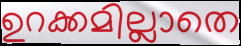
ഉറക്കമില്ലാതെ